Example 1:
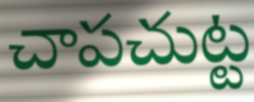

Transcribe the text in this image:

చాపచుట్ట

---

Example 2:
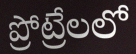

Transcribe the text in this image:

ప్రోట్రేలలో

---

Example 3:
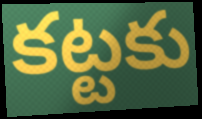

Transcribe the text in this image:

కట్టకు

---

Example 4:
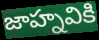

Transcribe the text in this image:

జాహ్నవికి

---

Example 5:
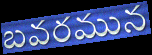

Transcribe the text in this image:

బవరమున